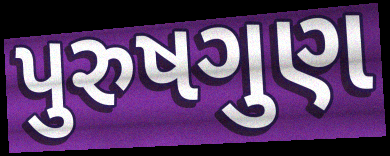
પુરુષગુણ